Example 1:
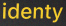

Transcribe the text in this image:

identy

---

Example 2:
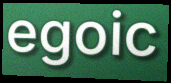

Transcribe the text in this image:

egoic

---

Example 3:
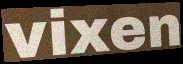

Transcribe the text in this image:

vixen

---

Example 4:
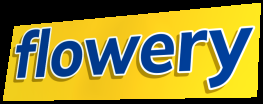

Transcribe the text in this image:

flowery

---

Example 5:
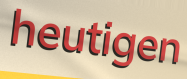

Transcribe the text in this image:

heutigen